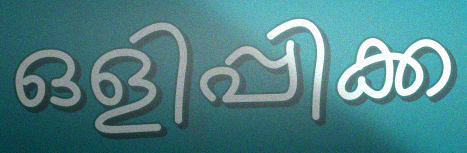
ഒളിപ്പിക്ക